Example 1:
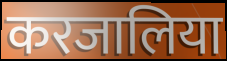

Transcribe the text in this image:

करजालिया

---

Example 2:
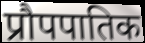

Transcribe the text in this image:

प्रौपपातिक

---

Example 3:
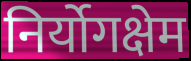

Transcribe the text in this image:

निर्योगक्षेम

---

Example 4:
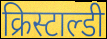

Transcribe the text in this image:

क्रिस्टाल्डी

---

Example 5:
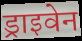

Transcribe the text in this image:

ड्राइवेन